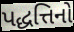
પદ્ધત્તિનો